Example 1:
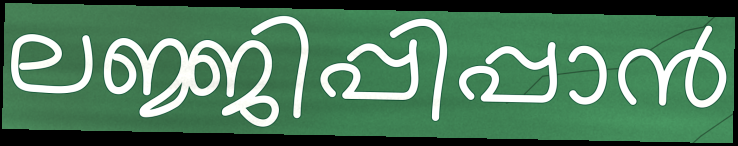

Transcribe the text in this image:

ലജ്ജിപ്പിപ്പാൻ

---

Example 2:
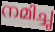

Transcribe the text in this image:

നമിച്ചു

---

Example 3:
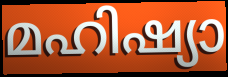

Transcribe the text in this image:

മഹിഷ്യാ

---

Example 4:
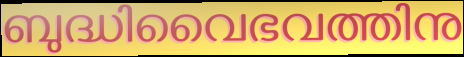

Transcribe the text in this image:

ബുദ്ധിവൈഭവത്തിനു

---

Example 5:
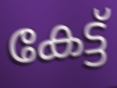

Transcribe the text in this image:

കേട്ട്